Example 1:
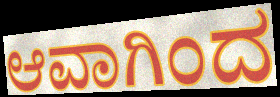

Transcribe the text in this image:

ಆವಾಗಿಂದ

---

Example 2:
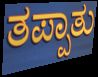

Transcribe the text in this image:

ತಪ್ಪಾತು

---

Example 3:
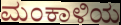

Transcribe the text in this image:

ಮಂಕಾಳಿಯ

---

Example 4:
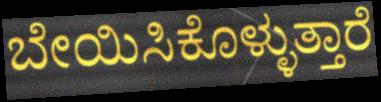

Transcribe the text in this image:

ಬೇಯಿಸಿಕೊಳ್ಳುತ್ತಾರೆ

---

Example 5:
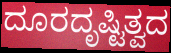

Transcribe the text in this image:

ದೂರದೃಷ್ಟಿತ್ವದ